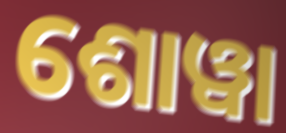
ଶୋୱା